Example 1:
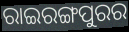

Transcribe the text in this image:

ରାଇରଙ୍ଗପୁରର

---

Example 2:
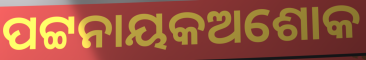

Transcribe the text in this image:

ପଟ୍ଟନାୟକଅଶୋକ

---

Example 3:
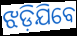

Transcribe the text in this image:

ଝଡ଼ିଯିବେ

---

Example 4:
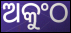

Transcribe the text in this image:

ଅକୁଂଠ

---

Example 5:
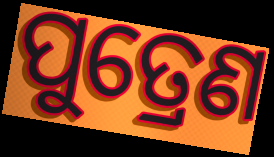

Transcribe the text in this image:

ପୁତ୍ରେଣ